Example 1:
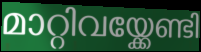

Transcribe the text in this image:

മാറ്റിവയ്ക്കേണ്ടി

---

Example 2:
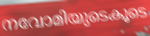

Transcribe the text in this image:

നവോമിയുടെകൂടെ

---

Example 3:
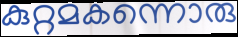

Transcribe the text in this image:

കുറ്റമകന്നൊരു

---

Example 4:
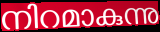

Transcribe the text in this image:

നിറമാകുന്നു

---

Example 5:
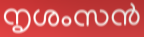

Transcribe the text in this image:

നൃശംസൻ